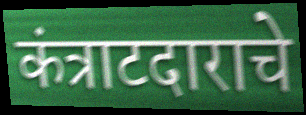
कंत्राटदाराचे